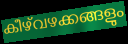
കീഴ്‌വഴക്കങ്ങളും